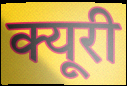
क्यूरी